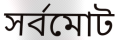
সর্বমোট